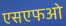
एसएफओ